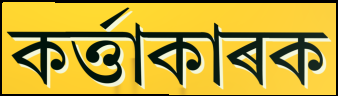
কৰ্ত্তাকাৰক